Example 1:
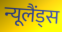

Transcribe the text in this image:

न्यूलैंड्स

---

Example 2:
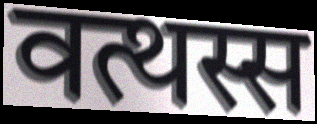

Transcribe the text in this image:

वत्थस्स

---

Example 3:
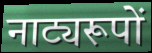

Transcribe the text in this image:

नाट्यरूपों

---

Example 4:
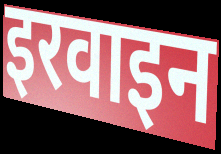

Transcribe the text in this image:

इरवाइन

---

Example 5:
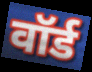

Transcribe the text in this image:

वॉर्ड